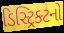
ડિસ્ટ્રિક્ટનો